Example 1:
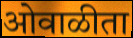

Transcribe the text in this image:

ओवाळीता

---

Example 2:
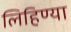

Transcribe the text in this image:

लिहिण्या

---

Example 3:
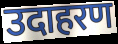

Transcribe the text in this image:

उदाहरण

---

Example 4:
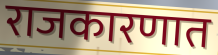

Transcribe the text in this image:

राजकारणात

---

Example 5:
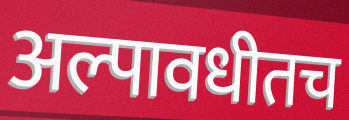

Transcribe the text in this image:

अल्पावधीतच